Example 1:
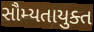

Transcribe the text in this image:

સૌમ્યતાયુક્ત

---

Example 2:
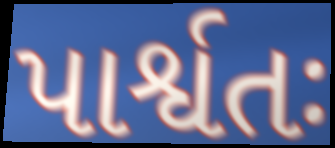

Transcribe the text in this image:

પાર્શ્વતઃ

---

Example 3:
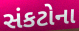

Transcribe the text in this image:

સંકટોના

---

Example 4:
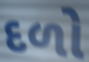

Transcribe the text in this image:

દળો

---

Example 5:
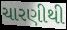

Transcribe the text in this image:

ચારણીથી